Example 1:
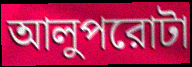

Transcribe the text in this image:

আলুপরোটা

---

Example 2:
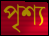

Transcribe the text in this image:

পৃশ্য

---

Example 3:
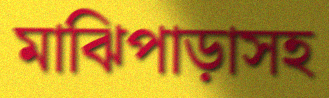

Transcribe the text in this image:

মাঝিপাড়াসহ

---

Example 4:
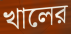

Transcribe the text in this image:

খালের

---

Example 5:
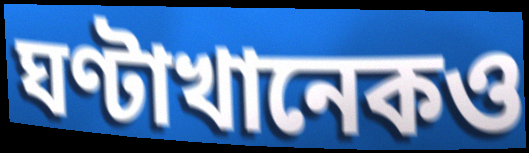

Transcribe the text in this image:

ঘণ্টাখানেকও